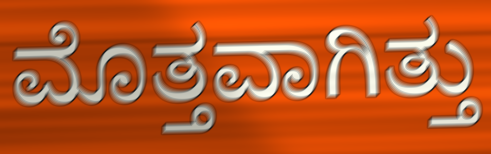
ಮೊತ್ತವಾಗಿತ್ತು